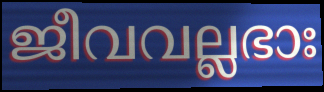
ജീവവല്ലഭാഃ